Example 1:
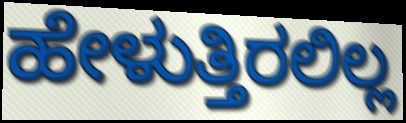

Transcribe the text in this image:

ಹೇಳುತ್ತಿರಲಿಲ್ಲ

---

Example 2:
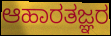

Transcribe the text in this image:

ಆಹಾರತಜ್ಞರ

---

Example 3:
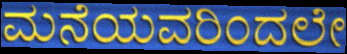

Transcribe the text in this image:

ಮನೆಯವರಿಂದಲೇ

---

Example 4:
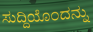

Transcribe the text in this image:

ಸುದ್ದಿಯೊಂದನ್ನು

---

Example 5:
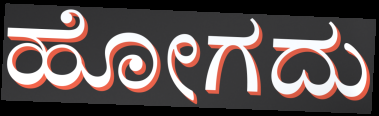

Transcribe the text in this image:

ಹೋಗದು